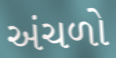
અંચળો